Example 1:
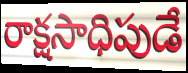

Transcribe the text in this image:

రాక్షసాధిపుడే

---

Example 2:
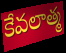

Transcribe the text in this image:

కేవలాత్మ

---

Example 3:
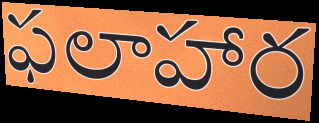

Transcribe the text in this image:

ఫలాహార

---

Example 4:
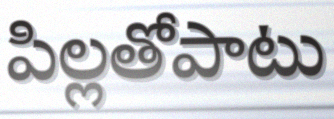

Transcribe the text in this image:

పిల్లతోపాటు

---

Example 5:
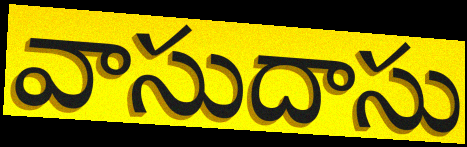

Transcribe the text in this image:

వాసుదాసు